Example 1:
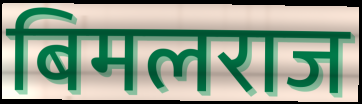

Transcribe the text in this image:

बिमलराज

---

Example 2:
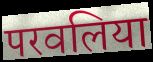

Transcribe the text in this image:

परवलिया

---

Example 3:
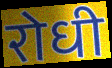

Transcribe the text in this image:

रोधी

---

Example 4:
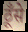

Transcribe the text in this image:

ठूँसे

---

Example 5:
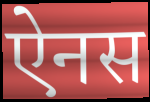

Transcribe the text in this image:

ऐनस